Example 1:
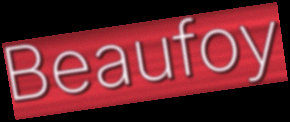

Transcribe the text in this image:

Beaufoy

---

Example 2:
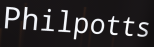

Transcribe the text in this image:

Philpotts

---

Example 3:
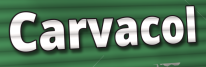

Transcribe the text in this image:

Carvacol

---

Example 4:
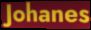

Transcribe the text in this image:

Johanes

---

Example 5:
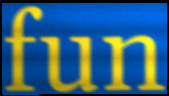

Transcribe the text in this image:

fun